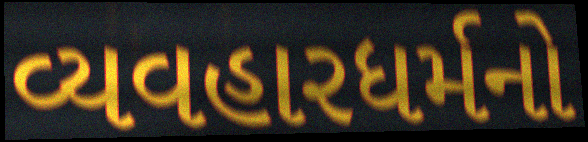
વ્યવહારધર્મનો